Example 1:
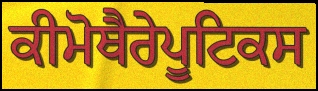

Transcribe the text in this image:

ਕੀਮੋਥੈਰੇਪੂਟਿਕਸ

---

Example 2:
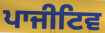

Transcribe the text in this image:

ਪਾਜੀਟਿਵ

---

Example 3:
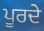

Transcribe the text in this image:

ਪੂਰਦੇ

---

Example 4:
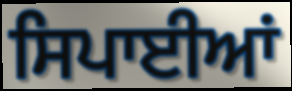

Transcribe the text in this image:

ਸਿਪਾਈਆਂ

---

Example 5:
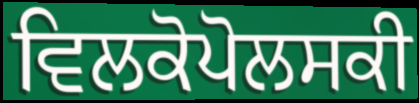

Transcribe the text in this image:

ਵਿਲਕੋਪੋਲਸਕੀ